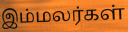
இம்மலர்கள்